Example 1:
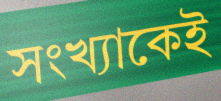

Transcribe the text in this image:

সংখ্যাকেই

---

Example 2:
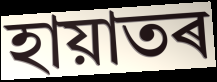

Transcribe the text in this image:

হায়াতৰ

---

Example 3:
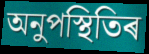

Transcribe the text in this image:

অনুপস্থিতিৰ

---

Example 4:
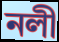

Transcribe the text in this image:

নলী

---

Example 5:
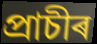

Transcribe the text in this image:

প্ৰাচীৰ